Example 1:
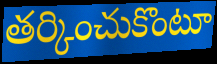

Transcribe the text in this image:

తర్కించుకొంటూ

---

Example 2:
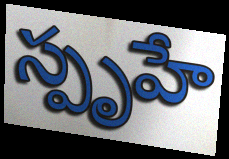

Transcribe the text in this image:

స్పృహే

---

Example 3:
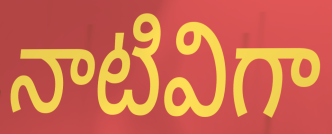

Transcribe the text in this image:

నాటివిగా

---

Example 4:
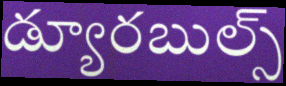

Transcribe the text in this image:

డ్యూరబుల్స్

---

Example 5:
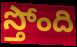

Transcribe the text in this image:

స్తోంది